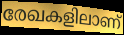
രേഖകളിലാണ്